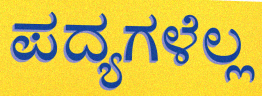
ಪದ್ಯಗಳೆಲ್ಲ